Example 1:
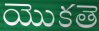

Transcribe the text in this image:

యొకతె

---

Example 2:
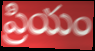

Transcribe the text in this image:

ప్రియం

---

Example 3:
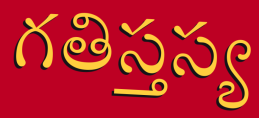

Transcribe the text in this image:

గతిస్తస్య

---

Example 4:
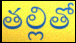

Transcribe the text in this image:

తల్లితో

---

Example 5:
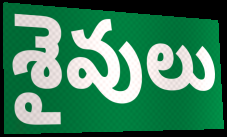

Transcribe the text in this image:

శైవులు